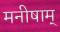
मनीषाम्